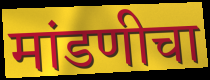
मांडणीचा